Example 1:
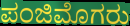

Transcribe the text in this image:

ಪಂಜಿಮೊಗರು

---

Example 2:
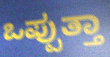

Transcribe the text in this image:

ಒಪ್ಪುತ್ತಾ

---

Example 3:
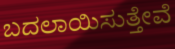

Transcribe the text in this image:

ಬದಲಾಯಿಸುತ್ತೇವೆ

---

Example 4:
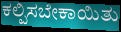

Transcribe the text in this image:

ಕಲ್ಪಿಸಬೇಕಾಯಿತು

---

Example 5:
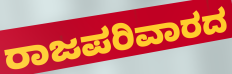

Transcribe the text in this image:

ರಾಜಪರಿವಾರದ